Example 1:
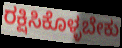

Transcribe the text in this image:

ರಕ್ಷಿಸಿಕೊಳ್ಳಬೇಕು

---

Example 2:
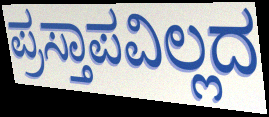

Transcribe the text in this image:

ಪ್ರಸ್ತಾಪವಿಲ್ಲದ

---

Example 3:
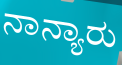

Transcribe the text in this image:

ನಾನ್ಯಾರು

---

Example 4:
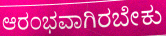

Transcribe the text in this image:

ಆರಂಭವಾಗಿರಬೇಕು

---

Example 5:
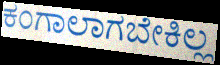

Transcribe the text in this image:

ಕಂಗಾಲಾಗಬೇಕಿಲ್ಲ